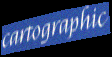
cartographic